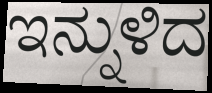
ಇನ್ನುಳಿದ